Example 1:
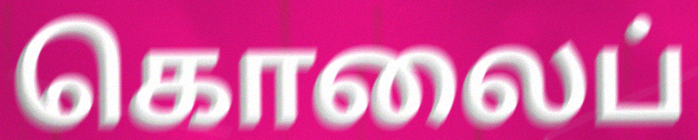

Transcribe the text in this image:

கொலைப்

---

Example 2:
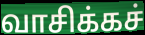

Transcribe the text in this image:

வாசிக்கச்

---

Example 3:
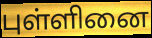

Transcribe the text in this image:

புள்ளினை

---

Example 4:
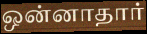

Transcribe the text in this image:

ஒன்னாதார்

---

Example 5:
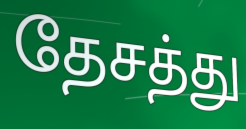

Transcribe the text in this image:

தேசத்து